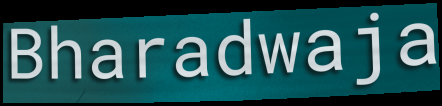
Bharadwaja